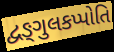
દ્વઙ્ગુલકપ્પોતિ